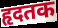
हृदतक